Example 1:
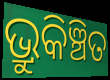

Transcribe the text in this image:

ଭ୍ରୁକିଞ୍ଚିତ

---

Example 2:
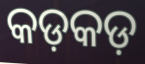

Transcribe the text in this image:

କଡ଼କଡ଼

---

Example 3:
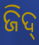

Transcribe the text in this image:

ଜିଦ୍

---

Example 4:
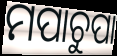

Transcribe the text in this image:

ମପାଚୁପା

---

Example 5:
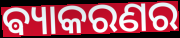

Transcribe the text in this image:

ଵ୍ୟାକରଣର